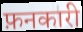
फ़नकारी